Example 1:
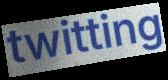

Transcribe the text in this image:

twitting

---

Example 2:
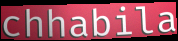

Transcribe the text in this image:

chhabila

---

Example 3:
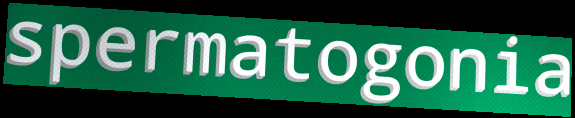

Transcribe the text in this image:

spermatogonia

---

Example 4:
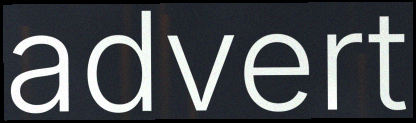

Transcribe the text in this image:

advert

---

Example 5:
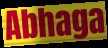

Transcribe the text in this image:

Abhaga